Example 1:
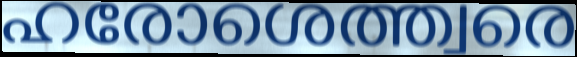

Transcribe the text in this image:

ഹരോശെത്ത്വരെ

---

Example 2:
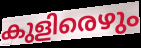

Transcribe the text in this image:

കുളിരെഴും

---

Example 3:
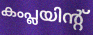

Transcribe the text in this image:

കംപ്ലയിന്റ്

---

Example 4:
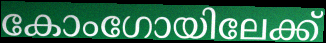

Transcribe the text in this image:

കോംഗോയിലേക്ക്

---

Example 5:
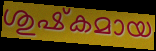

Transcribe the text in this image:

ശുഷ്‌കമായ